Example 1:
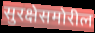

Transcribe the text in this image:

सुरक्षेसमोरील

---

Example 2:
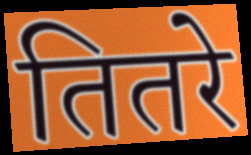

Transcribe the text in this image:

तितरे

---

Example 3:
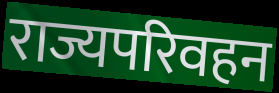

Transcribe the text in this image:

राज्यपरिवहन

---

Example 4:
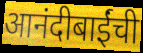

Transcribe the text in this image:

आनंदीबाईंची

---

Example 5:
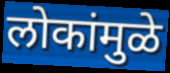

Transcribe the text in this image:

लोकांमुळे